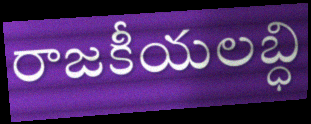
రాజకీయలబ్ధి